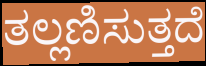
ತಲ್ಲಣಿಸುತ್ತದೆ